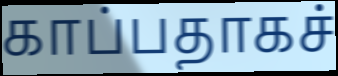
காப்பதாகச்